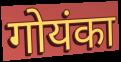
गोयंका